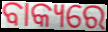
ବାକ୍ୟରେ